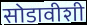
सोडावीशी